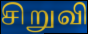
சிறுவி